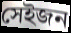
সেইজন